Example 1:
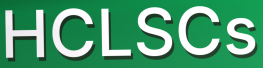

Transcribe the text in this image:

HCLSCs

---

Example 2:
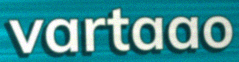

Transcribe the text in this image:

vartaao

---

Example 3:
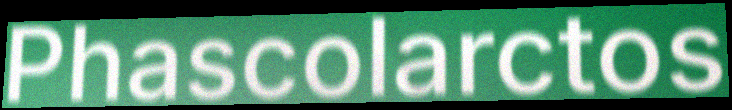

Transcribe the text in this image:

Phascolarctos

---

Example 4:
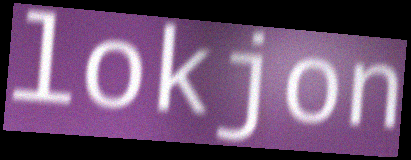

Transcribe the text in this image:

lokjon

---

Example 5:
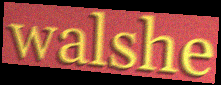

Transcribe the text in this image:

walshe